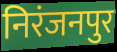
निरंजनपुर